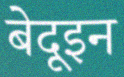
बेदूइन